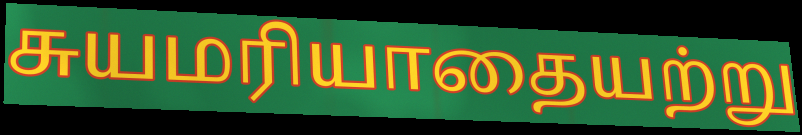
சுயமரியாதையற்று